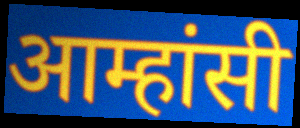
आम्हांसी